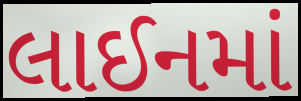
લાઈનમાં